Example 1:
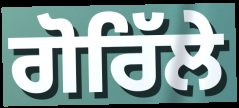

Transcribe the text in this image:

ਗੋਰਿੱਲੇ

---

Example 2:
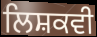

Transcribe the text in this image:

ਲਿਸ਼ਕਵੀ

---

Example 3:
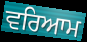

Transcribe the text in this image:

ਵਰਿਆਮ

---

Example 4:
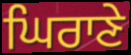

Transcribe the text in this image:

ਘਿਰਾਣੇ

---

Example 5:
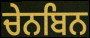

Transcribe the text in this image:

ਚੇਨਬਿਨ